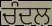
ਚੰਦਲ